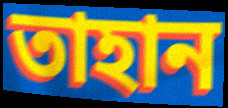
তাহান